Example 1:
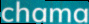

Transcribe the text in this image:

chama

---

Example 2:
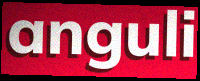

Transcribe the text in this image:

anguli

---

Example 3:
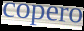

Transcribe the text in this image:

copero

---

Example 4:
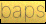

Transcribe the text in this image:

baps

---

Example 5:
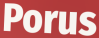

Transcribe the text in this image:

Porus